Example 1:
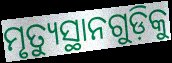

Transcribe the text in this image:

ମୃତ୍ୟୁସ୍ଥାନଗୁଡ଼ିକୁ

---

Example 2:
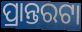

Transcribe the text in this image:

ପ୍ରାନ୍ତରଟା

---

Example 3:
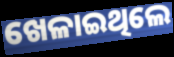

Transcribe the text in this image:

ଖେଳାଇଥିଲେ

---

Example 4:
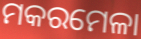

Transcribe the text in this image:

ମକରମେଳା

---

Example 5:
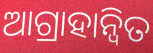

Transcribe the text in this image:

ଆଗ୍ରାହାନ୍ୱିତ